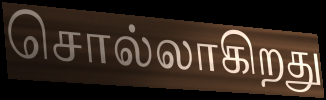
சொல்லாகிறது